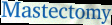
Mastectomy